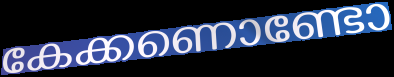
കേക്കണൊണ്ടോ